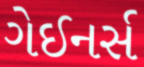
ગેઈનર્સ